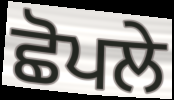
ਛੋਪਲੇ